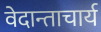
वेदान्ताचार्य